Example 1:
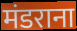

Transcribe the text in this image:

मंडराना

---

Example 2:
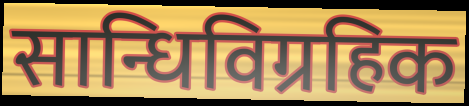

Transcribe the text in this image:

सान्धिविग्रहिक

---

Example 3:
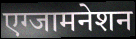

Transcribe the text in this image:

एग्जामनेशन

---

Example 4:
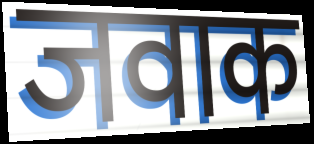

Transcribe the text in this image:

जवाक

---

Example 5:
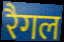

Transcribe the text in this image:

रैगल